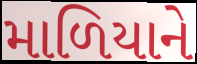
માળિયાને